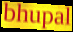
bhupal